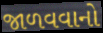
જાળવવાનો